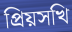
প্রিয়সখি